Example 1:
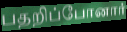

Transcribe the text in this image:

பதறிப்போனார்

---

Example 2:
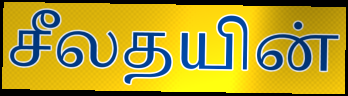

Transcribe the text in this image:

சீலதயின்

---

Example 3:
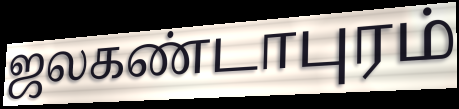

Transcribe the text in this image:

ஜலகண்டாபுரம்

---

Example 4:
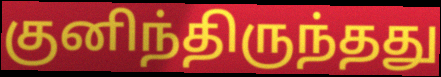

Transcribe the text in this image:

குனிந்திருந்தது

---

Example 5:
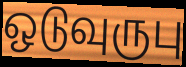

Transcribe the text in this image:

ஒடுவுருபு